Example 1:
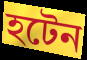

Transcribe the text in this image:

হটেন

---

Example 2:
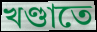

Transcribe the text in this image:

খণ্ডাতে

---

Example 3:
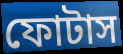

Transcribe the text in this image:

ফোটাস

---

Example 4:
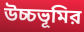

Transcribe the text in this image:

উচ্চভূমির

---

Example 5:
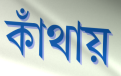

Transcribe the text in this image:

কাঁথায়